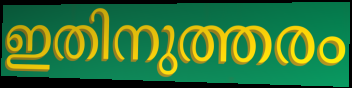
ഇതിനുത്തരം